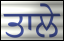
ਤਾਲੇ